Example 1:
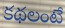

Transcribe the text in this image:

కథలంటే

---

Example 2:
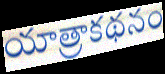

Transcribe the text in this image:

యాత్రాకథనం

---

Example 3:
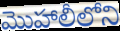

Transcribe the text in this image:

మొహాలీలోని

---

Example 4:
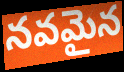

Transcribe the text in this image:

నవమైన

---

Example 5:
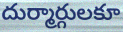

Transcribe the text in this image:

దుర్మార్గులకూ